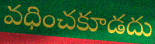
వధించకూడదు